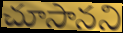
చూసానని